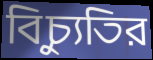
বিচ্যুতির